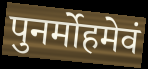
पुनर्मोहमेवं